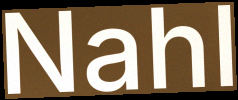
Nahl